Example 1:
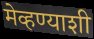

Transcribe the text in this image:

मेव्हण्याशी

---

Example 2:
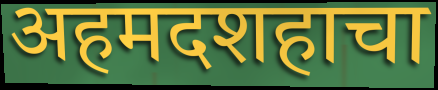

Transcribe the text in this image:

अहमदशहाचा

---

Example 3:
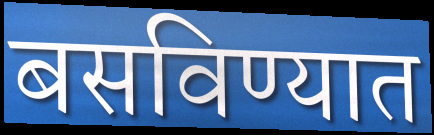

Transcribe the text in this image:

बसविण्यात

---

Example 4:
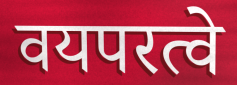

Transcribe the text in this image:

वयपरत्वे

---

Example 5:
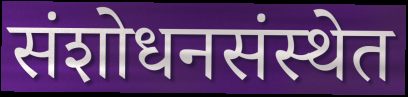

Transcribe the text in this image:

संशोधनसंस्थेत